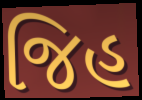
જિહ